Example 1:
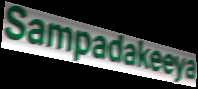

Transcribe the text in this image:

Sampadakeeya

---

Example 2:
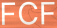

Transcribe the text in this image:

FCF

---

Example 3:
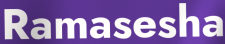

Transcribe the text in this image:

Ramasesha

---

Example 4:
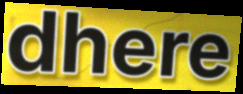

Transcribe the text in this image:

dhere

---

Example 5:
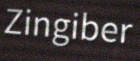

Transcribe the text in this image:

Zingiber